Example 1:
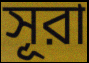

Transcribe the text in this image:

সূরা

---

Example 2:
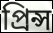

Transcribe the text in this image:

প্রিন্স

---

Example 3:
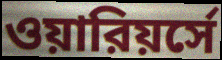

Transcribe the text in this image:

ওয়ারিয়র্সে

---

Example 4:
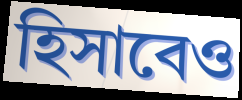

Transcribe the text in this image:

হিসাবেও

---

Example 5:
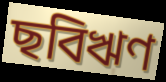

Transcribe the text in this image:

ছবিঋণ